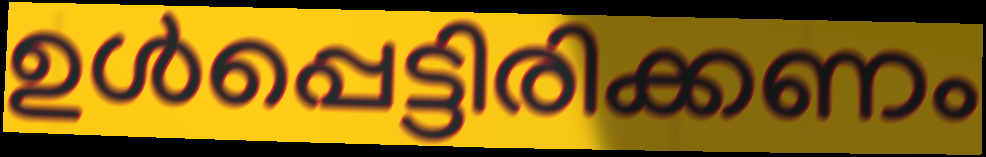
ഉൾപ്പെട്ടിരിക്കണം